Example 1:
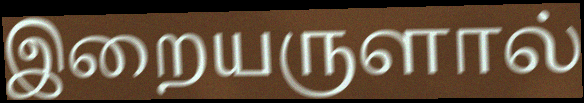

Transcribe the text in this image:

இறையருளால்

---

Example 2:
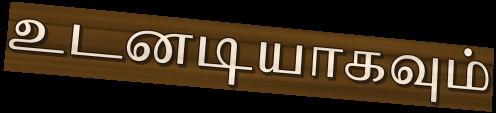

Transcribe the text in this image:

உடனடியாகவும்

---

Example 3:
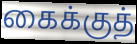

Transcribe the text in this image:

கைக்குத்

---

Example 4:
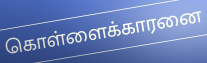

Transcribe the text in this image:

கொள்ளைக்காரனை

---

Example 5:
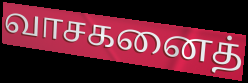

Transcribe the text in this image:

வாசகனைத்